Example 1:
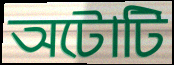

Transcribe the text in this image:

অটোটি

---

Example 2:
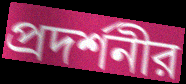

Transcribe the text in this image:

প্রদর্শনীর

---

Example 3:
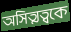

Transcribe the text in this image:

অসিত্মত্বকে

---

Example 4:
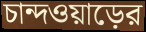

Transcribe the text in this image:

চান্দওয়াড়ের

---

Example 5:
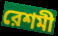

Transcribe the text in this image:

রেশমী